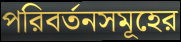
পরিবর্তনসমূহের